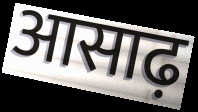
आसाढ़